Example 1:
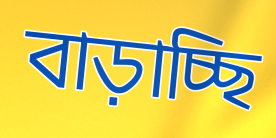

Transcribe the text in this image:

বাড়াচ্ছি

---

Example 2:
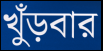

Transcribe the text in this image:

খুঁড়বার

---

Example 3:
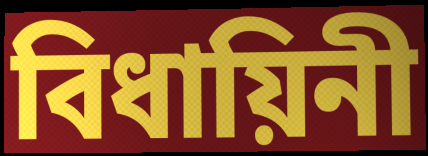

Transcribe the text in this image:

বিধায়িনী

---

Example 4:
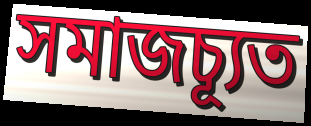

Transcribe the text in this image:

সমাজচ্যূত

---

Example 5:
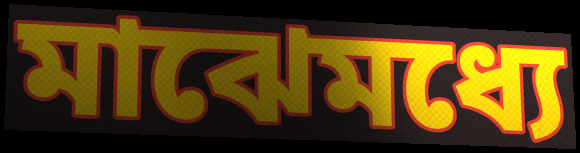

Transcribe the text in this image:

মাঝেমধ্যে